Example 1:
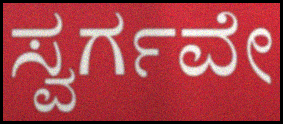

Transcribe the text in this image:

ಸ್ವರ್ಗವೇ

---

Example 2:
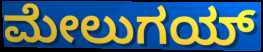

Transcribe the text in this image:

ಮೇಲುಗಯ್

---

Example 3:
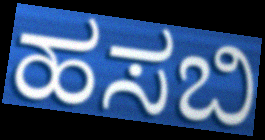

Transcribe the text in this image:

ಹಸಬಿ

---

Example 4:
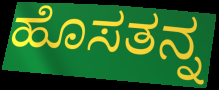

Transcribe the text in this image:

ಹೊಸತನ್ನ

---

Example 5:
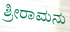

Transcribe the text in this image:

ಶ್ರೀರಾಮನು